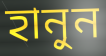
হানুন